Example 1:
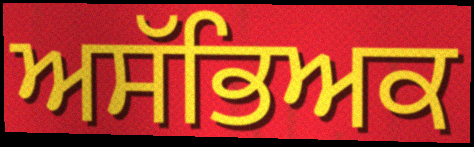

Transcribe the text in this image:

ਅਸੱਭਿਅਕ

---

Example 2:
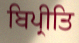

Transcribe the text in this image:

ਬਿਪ੍ਰੀਤਿ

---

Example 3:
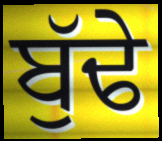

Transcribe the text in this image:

ਬੁੱਢੇ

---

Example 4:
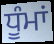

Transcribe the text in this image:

ਧੂੰਮਾਂ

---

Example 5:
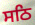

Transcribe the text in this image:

ਸਠਿ